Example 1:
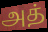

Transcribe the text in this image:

அத்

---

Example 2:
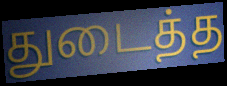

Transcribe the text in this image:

துடைத்த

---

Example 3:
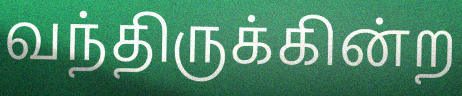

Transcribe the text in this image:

வந்திருக்கின்ற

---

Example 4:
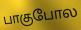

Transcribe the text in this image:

பாகுபோல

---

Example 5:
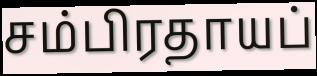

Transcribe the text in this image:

சம்பிரதாயப்